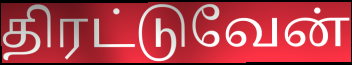
திரட்டுவேன்